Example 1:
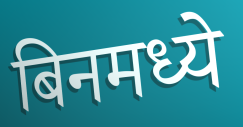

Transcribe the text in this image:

बिनमध्ये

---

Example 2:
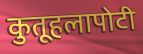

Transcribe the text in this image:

कुतूहलापोटी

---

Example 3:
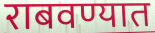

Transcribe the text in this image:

राबवण्यात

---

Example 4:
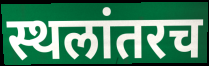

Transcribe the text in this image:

स्थलांतरच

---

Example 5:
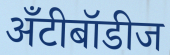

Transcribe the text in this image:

अँटीबॉडीज